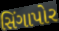
સિંગાપોર